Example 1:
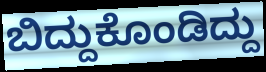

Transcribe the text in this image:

ಬಿದ್ದುಕೊಂಡಿದ್ದು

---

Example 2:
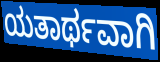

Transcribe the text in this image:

ಯತಾರ್ಥವಾಗಿ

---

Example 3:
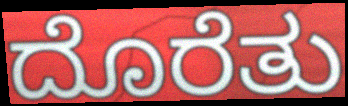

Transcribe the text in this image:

ದೊರೆತು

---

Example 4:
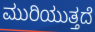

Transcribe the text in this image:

ಮುರಿಯುತ್ತದೆ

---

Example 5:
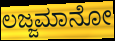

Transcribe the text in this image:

ಲಜ್ಜಮಾನೋ